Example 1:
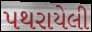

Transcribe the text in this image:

પથરાયેલી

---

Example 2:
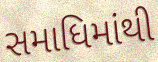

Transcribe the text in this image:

સમાધિમાંથી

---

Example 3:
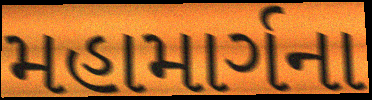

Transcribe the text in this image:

મહામાર્ગના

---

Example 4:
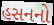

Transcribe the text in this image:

હસનનો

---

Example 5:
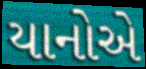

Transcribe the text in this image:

યાનોએ